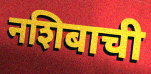
नशिबाची